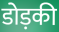
डोड़की